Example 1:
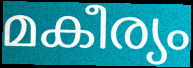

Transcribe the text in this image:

മകീര്യം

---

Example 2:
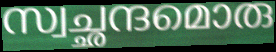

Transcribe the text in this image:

സ്വച്ഛന്ദമൊരു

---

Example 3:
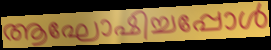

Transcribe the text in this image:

ആഘോഷിച്ചപ്പോൾ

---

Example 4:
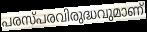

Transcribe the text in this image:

പരസ്പരവിരുദ്ധവുമാണ്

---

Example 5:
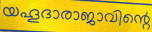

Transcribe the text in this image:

യഹൂദാരാജാവിന്റെ